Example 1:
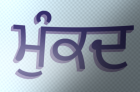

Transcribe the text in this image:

ਮੁੰਕਦ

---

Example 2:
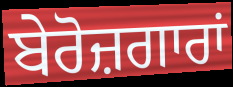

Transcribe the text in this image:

ਬੇਰੋਜ਼ਗਾਰਾਂ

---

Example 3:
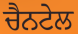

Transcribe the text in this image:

ਚੈਨਟੇਲ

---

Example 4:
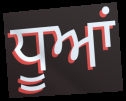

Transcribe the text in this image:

ਧੂਆਂ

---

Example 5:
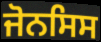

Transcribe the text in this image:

ਜੋਨਸਿਸ